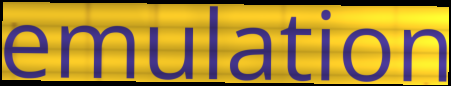
emulation